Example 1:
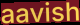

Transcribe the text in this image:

aavish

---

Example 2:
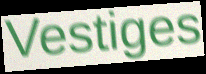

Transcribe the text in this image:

Vestiges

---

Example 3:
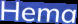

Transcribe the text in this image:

Hema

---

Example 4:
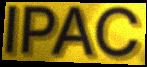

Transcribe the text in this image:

IPAC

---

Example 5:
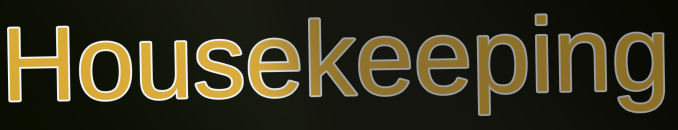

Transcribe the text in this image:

Housekeeping